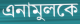
এনামুলকে